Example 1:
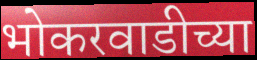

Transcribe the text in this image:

भोकरवाडीच्या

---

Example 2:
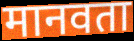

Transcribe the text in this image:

मानवता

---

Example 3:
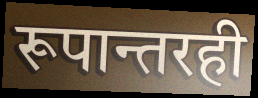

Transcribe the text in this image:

रूपान्तरही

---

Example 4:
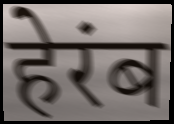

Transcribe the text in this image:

हेरंब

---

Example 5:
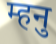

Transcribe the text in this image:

म्हनु